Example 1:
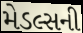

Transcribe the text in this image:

મેડલ્સની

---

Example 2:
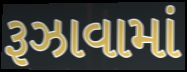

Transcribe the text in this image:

રૂઝાવામાં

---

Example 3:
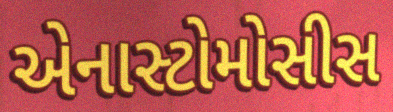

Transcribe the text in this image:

એનાસ્ટોમોસીસ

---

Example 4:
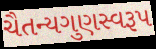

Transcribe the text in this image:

ચૈતન્યગુણસ્વરૂપ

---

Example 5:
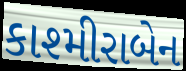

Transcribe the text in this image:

કાશ્મીરાબેન